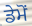
ਡੇਮੋਂ